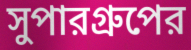
সুপারগ্রুপের